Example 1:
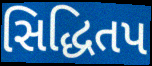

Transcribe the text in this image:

સિદ્ધિતપ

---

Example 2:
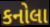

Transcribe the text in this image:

કનોલા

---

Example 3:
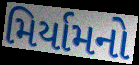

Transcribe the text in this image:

મિર્યામનો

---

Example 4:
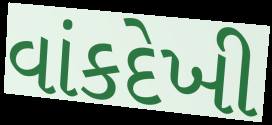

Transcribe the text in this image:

વાંકદેખી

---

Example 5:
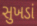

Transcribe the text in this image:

સુખડાં